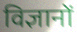
विज्ञानों